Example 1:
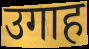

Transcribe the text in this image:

उगाह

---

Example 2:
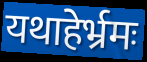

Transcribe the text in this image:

यथाहेर्भ्रमः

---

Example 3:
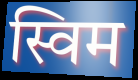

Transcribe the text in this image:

स्विम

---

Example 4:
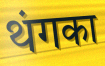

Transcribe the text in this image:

थंगका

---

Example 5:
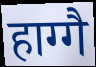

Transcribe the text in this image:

हाग्गै